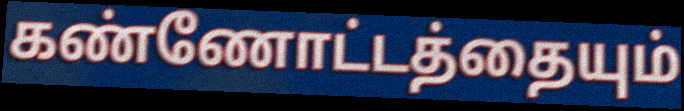
கண்ணோட்டத்தையும்